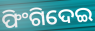
ଫିଂଗିଦେଇ